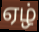
ஏழ்